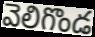
వెలిగొండ